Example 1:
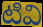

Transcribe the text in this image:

టివి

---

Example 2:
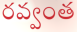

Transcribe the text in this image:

రవ్వంత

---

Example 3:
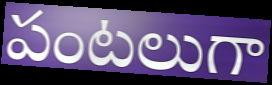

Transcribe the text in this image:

పంటలుగా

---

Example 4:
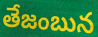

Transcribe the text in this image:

తేజంబున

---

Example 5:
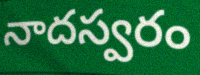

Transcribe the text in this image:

నాదస్వరం